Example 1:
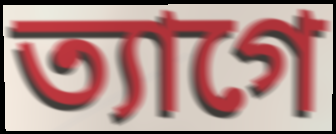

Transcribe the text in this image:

ত্যাগে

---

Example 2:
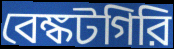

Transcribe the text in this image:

বেঙ্কটগিরি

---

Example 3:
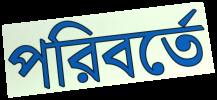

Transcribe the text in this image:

পরিবর্তে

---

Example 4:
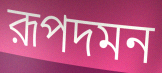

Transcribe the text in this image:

রূপদমন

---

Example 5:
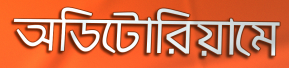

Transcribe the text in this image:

অডিটোরিয়ামে